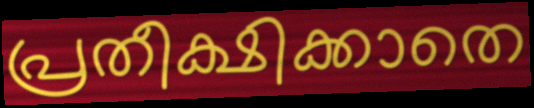
പ്രതീക്ഷിക്കാതെ